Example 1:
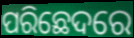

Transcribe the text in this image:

ପରିଛେଦରେ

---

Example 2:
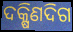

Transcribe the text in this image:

ଦକ୍ଷିଣଦିଗ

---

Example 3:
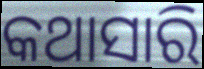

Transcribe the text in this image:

କଥାସାରି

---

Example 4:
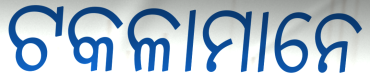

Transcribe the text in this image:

ଟକଳାମାନେ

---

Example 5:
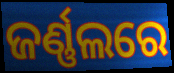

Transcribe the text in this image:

ଜର୍ଣ୍ଣଲରେ